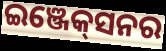
ଇଞ୍ଜେକ୍‌ସନର